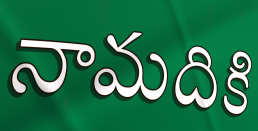
నామదికి